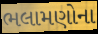
ભલામણોના